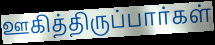
ஊகித்திருப்பார்கள்